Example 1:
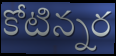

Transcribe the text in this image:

కోటిన్నర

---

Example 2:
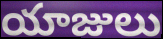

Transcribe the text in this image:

యాజులు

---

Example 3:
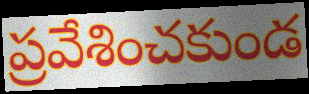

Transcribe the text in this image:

ప్రవేశించకుండ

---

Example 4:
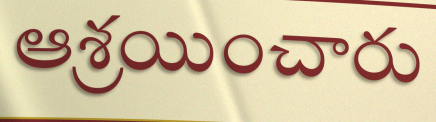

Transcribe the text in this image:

ఆశ్రయించారు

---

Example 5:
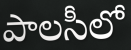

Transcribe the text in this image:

పాలసీలో